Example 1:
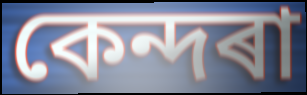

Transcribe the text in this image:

কেন্দৰা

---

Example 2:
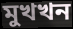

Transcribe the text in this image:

মুখখন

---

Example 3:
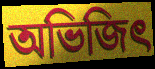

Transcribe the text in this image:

অভিজিৎ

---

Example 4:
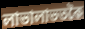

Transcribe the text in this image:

লাভালাভতকৈ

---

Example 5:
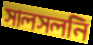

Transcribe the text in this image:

সালসলনি